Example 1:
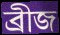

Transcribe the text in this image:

ব্রীজ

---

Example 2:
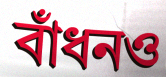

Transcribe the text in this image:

বাঁধনও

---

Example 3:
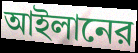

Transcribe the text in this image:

আইলানের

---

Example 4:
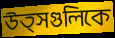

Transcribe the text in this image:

উত্সগুলিকে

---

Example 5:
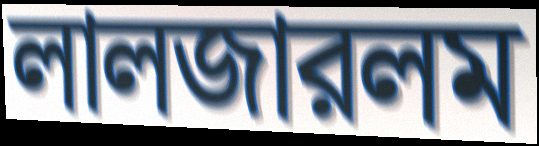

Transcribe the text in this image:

লালজারলম